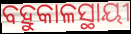
ବହୁକାଳସ୍ଥାୟୀ